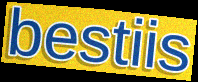
bestiis